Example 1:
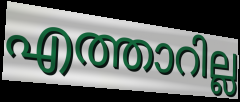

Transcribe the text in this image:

എത്താറില്ല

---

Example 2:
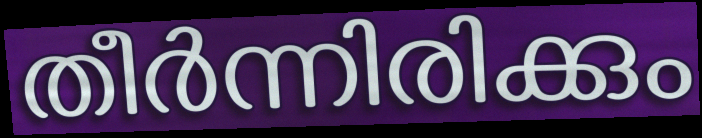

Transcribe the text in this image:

തീർന്നിരിക്കും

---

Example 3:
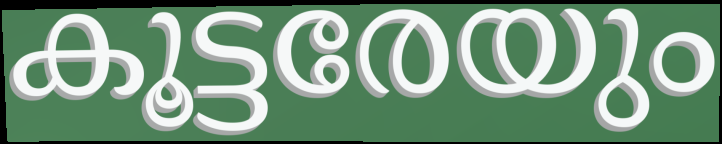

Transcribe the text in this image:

കൂട്ടരേയും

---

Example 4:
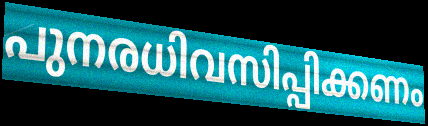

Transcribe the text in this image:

പുനരധിവസിപ്പിക്കണം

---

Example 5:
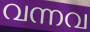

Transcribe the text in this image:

വന്നവ